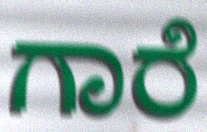
ಗಾರೆ